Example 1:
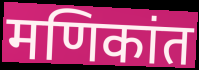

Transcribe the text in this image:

मणिकांत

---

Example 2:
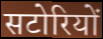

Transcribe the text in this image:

सटोरियों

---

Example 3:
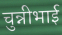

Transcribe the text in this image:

चुन्नीभाई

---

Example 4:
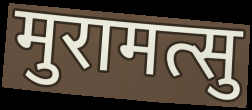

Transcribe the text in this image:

मुरामत्सु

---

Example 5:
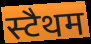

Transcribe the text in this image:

स्टैथम